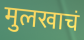
मुलखाचं